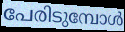
പേരിടുമ്പോൾ